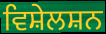
ਵਿਸ਼ੇਲਸ਼ਨ